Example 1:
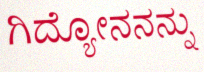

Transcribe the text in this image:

ಗಿದ್ಯೋನನನ್ನು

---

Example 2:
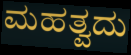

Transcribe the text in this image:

ಮಹತ್ವದು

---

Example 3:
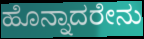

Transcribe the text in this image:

ಹೊನ್ನಾದರೇನು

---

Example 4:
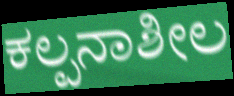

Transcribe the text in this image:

ಕಲ್ಪನಾಶೀಲ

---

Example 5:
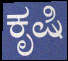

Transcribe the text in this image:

ಕೃಷಿ